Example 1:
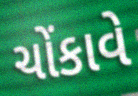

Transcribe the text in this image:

ચોંકાવે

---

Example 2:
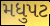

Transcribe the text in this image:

મધુપટ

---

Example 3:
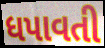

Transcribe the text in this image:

ધપાવતી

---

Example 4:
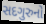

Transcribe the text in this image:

સદગુરુનો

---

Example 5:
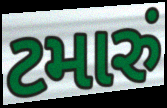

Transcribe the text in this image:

ટમારું